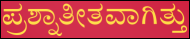
ಪ್ರಶ್ನಾತೀತವಾಗಿತ್ತು